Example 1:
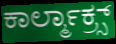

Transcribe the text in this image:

ಕಾರ್ಲ್ಮಾಕ್ರ್ಸ್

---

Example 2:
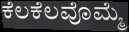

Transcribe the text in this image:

ಕೆಲಕೆಲವೊಮ್ಮೆ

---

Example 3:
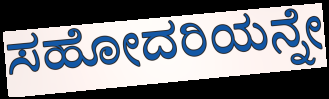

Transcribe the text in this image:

ಸಹೋದರಿಯನ್ನೇ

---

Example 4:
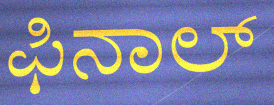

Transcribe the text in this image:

ಫಿನಾಲ್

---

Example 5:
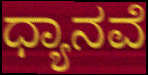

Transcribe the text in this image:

ಧ್ಯಾನವೆ